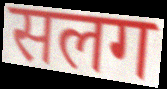
सलग